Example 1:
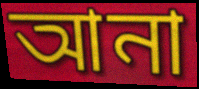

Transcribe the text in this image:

আনা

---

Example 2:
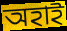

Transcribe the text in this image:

অহাই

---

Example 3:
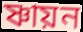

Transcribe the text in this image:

ষ্ণায়ন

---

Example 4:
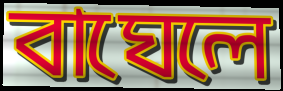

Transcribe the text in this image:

বাঘেলে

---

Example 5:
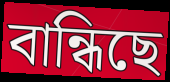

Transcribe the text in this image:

বান্ধিছে